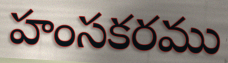
హంసకరము